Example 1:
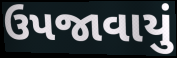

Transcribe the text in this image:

ઉપજાવાયું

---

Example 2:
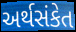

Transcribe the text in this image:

અર્થસંકેત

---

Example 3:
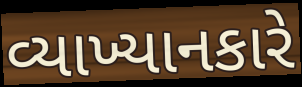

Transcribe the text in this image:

વ્યાખ્યાનકારે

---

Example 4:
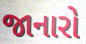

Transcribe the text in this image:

જાનારો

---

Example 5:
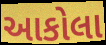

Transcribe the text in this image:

આકોલા